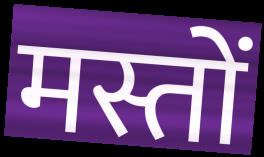
मस्तों